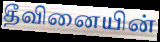
தீவினையின்